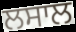
ਲਸਾਲ